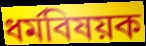
ধর্মবিষয়ক